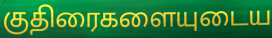
குதிரைகளையுடைய